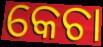
କେଚା